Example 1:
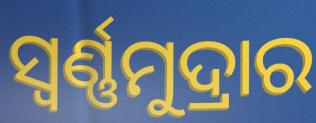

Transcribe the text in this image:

ସ୍ୱର୍ଣ୍ଣମୁଦ୍ରାର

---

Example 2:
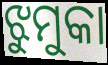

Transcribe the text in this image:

ଝୁମୁକା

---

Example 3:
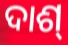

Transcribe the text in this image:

ଦାଶ୍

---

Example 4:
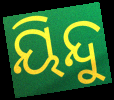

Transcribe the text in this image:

ୟିନ୍ଦୁ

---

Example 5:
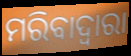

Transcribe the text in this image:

ମରିବାଦ୍ୱାରା